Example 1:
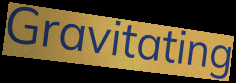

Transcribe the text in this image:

Gravitating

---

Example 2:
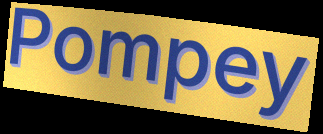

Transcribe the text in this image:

Pompey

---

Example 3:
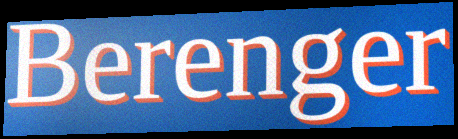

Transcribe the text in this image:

Berenger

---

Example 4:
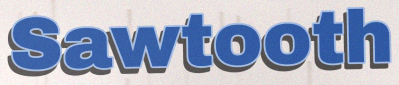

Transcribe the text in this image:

Sawtooth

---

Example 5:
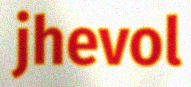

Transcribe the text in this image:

jhevol